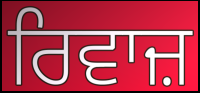
ਰਿਵਾਜ਼